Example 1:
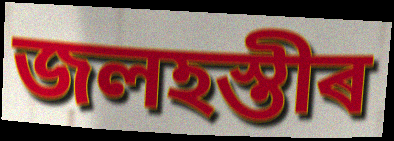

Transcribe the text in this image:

জলহস্তীৰ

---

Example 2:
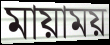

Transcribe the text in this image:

মায়াময়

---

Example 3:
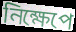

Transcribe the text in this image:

নিক্ষেপে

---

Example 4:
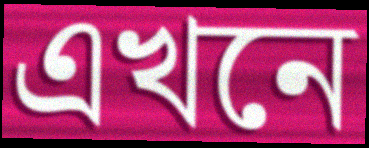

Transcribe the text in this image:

এখনে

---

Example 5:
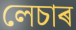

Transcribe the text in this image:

লেচাৰ